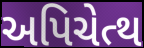
અપિચેત્થ